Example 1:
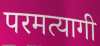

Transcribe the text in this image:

परमत्यागी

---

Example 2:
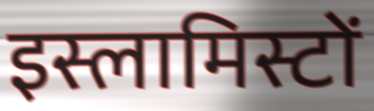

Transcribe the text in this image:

इस्लामिस्टों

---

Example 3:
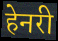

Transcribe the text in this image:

हेनरी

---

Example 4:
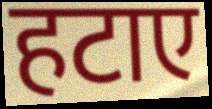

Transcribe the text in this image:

हटाए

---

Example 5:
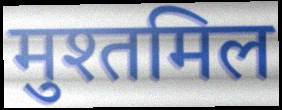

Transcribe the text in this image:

मुश्तमिल